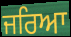
ਜਰਿਆ